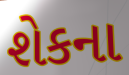
શેકના